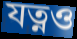
যত্নও